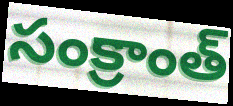
సంక్రాంత్